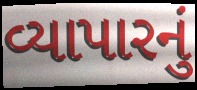
વ્યાપારનું